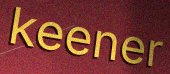
keener